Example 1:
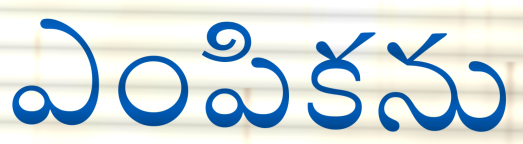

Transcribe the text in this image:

ఎంపికను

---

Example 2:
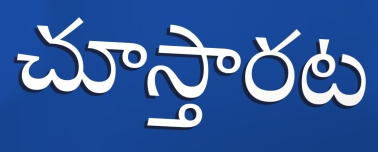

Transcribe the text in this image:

చూస్తారట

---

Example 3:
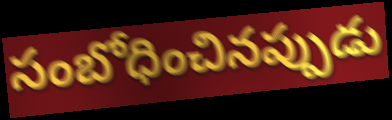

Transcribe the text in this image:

సంబోధించినప్పుడు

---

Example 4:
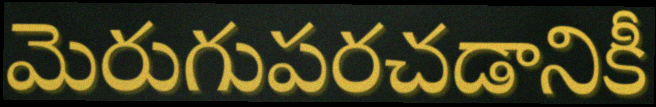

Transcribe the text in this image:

మెరుగుపరచడానికీ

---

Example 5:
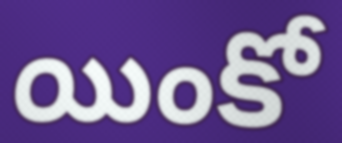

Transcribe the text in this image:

యింకో